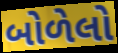
બોળેલો